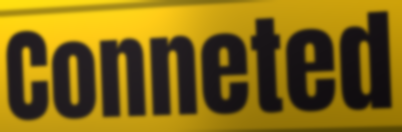
Conneted